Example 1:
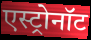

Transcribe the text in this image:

एस्ट्रोनॉट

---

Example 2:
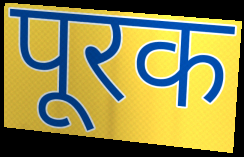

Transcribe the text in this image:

पूरक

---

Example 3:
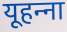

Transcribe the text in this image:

यूहन्ना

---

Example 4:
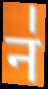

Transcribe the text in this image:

न॑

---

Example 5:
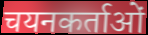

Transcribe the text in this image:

चयनकर्ताओं